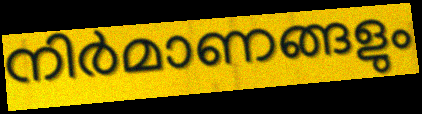
നിർമാണങ്ങളും